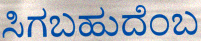
ಸಿಗಬಹುದೆಂಬ